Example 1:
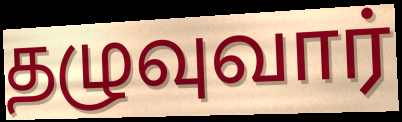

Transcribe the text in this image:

தழுவுவார்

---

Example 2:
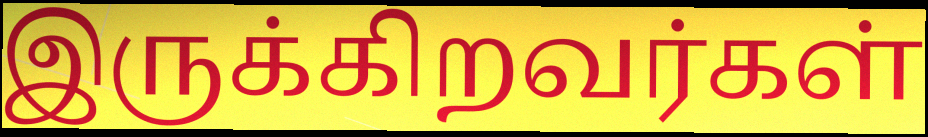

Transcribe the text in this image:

இருக்கிறவர்கள்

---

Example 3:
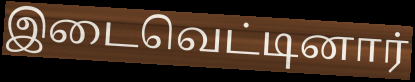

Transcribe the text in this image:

இடைவெட்டினார்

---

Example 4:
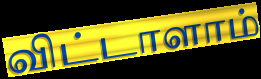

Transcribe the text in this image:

விட்டாளாம்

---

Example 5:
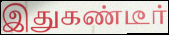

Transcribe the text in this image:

இதுகண்டீர்